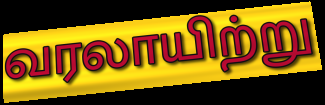
வரலாயிற்று